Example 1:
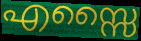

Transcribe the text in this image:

എസ്സൈ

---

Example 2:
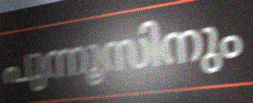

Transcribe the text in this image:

പുന്നൂസിനും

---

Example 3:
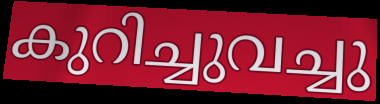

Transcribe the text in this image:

കുറിച്ചുവച്ചു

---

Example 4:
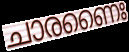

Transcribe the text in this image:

ചാരണൈഃ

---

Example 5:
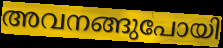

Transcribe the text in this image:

അവനങ്ങുപോയി